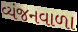
વ્યંજનવાળા